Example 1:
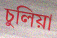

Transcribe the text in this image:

চুলিয়া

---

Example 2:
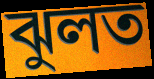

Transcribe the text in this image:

ঝুলত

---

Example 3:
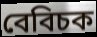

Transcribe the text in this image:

বেবিচক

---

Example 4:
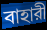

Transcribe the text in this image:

বাহারী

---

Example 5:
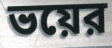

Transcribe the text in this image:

ভয়ের